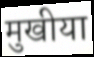
मुखीया